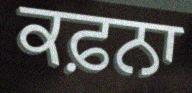
ਕਫ਼ਨਾ